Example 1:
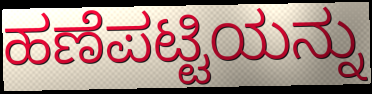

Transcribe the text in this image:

ಹಣೆಪಟ್ಟಿಯನ್ನು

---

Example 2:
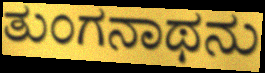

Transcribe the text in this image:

ತುಂಗನಾಥನು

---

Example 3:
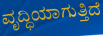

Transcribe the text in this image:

ವೃದ್ಧಿಯಾಗುತ್ತಿದೆ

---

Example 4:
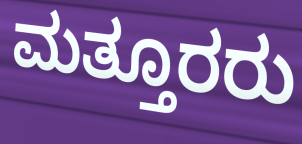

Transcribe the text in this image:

ಮತ್ತೂರರು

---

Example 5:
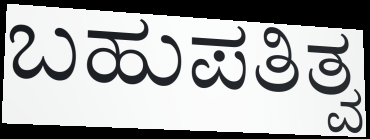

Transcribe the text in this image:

ಬಹುಪತಿತ್ವ